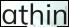
athin